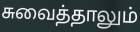
சுவைத்தாலும்